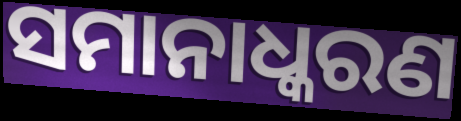
ସମାନାଧ୍କରଣ